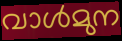
വാൾമുന